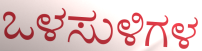
ಒಳಸುಳಿಗಳ